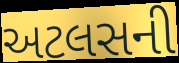
અટલસની